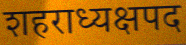
शहराध्यक्षपद